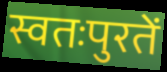
स्वतःपुरतें